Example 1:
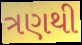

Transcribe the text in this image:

ત્રણથી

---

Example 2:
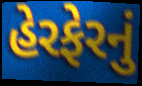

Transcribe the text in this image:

હેરફેરનું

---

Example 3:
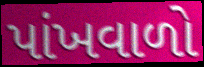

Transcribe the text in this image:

પાંખવાળો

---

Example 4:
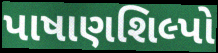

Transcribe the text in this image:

પાષાણશિલ્પો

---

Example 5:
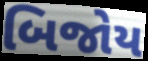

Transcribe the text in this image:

બિજોય